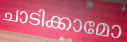
ചാടിക്കാമോ